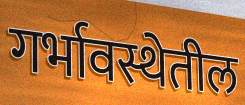
गर्भावस्थेतील